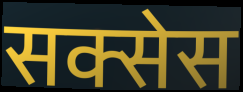
सक्सेस